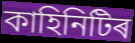
কাহিনিটিৰ